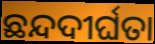
ଛନ୍ଦଦୀର୍ଘତା